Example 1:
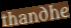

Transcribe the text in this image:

thandhe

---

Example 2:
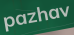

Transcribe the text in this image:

pazhav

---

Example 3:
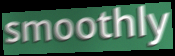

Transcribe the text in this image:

smoothly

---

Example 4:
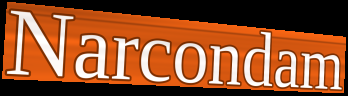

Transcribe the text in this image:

Narcondam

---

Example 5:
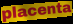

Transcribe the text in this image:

placenta